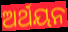
ଅର୍ଥୟନ